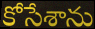
కోసేశాను